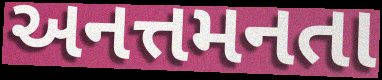
અનત્તમનતા